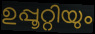
ഉപ്പൂറ്റിയും